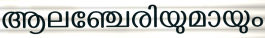
ആലഞ്ചേരിയുമായും